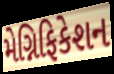
મેગ્નિફિકેશન